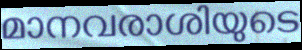
മാനവരാശിയുടെ